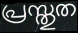
പ്രസ്തുത